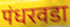
पंधरवडा